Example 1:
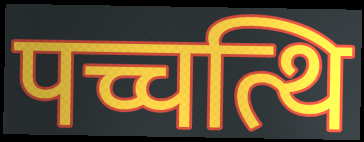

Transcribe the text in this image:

पच्चत्थि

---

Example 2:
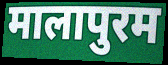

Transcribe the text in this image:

मालापुरम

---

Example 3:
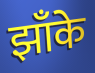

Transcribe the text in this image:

झाँके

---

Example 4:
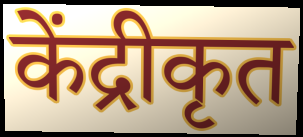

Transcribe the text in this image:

केंद्रीकृत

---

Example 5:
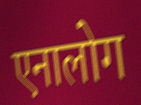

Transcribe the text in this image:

एनालोग